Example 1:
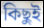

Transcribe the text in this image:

কিছুই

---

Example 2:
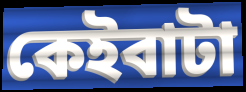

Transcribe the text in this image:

কেইবাটা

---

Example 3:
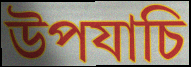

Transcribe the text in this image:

উপযাচি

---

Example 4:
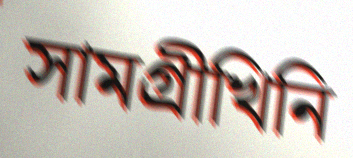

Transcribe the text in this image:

সামগ্ৰীখিনি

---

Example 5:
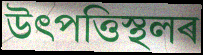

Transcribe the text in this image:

উৎপত্তিস্থলৰ